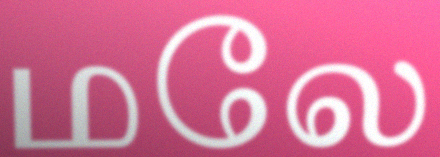
மலே